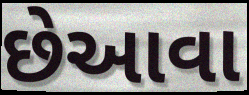
છેઆવા